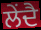
ਲੇਂਦੈ